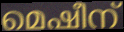
മെഷീന്